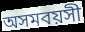
অসমবয়সী